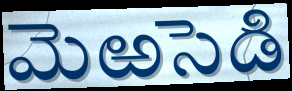
మెఱసెడి